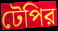
টেপির